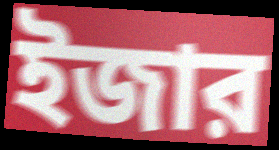
ইজার